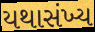
યથાસંખ્ય